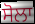
ਸੋਲਾ